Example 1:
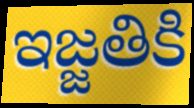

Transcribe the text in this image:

ఇజ్జతికి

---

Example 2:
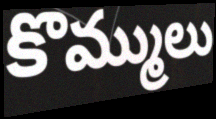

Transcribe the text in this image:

కొమ్ములు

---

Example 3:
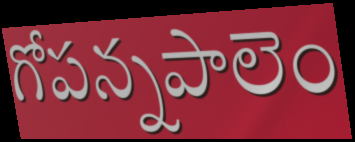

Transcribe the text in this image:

గోపన్నపాలెం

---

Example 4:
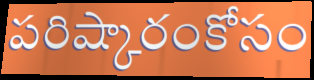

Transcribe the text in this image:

పరిష్కారంకోసం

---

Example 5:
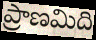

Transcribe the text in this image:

ప్రాణమిది